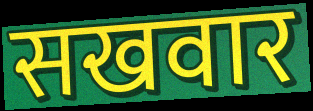
सखवार